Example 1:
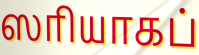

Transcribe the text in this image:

ஸரியாகப்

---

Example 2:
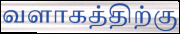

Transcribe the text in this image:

வளாகத்திற்கு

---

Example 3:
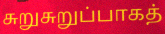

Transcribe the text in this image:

சுறுசுறுப்பாகத்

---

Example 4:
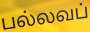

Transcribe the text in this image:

பல்லவப்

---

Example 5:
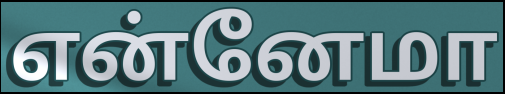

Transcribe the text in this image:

என்னேமா